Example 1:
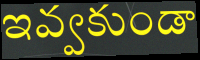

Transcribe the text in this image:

ఇవ్వకుండా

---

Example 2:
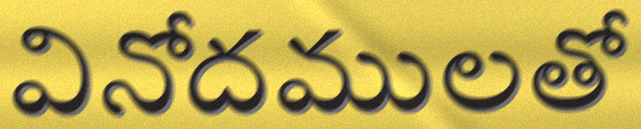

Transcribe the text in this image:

వినోదములతో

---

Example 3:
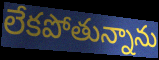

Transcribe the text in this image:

లేకపోతున్నాను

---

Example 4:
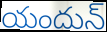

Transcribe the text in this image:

యందున్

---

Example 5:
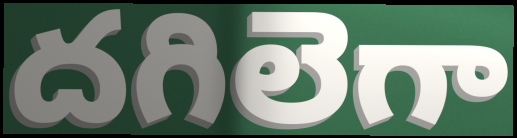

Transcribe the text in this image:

దగిలెగా